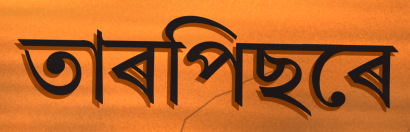
তাৰপিছৰে